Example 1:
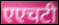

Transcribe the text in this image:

एएचटी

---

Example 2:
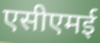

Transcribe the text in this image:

एसीएमई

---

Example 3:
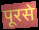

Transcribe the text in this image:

पूरसे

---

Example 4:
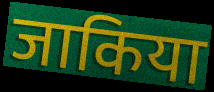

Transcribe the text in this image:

जाकिया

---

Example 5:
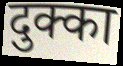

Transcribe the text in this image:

दुक्का